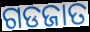
ଗଡଜାତ